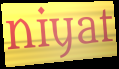
niyat